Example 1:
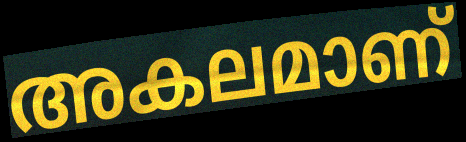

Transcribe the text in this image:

അകലമാണ്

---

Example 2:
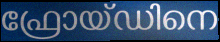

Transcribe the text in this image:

ഫ്രോയ്ഡിനെ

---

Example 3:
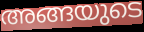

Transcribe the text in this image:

അങ്ങയുടെ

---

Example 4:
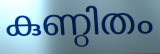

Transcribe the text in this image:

കുണ്ഠിതം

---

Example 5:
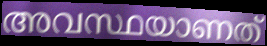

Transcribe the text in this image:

അവസ്ഥയാണത്